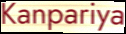
Kanpariya